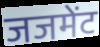
जजमेंट